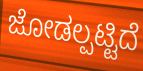
ಜೋಡಲ್ಪಟ್ಟಿದೆ